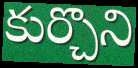
కుర్చొని